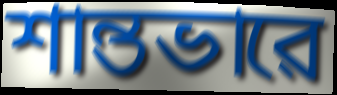
শান্তভাৱে